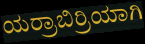
ಯರ್ರಾಬಿರ್ರಿಯಾಗಿ